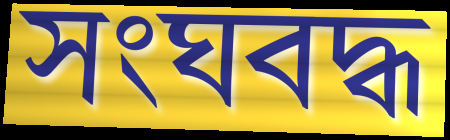
সংঘবদ্ধ